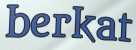
berkat